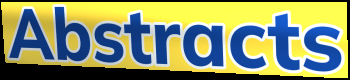
Abstracts